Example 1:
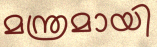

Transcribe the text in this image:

മന്ത്രമായി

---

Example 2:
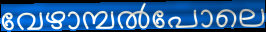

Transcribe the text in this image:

വേഴാമ്പൽപോലെ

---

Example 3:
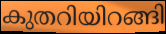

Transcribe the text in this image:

കുതറിയിറങ്ങി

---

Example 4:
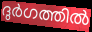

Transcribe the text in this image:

ദുർഗത്തിൽ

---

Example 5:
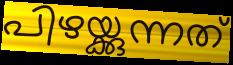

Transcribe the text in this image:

പിഴയ്ക്കുന്നത്